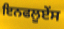
ਇਨਫਲੂਏਂਸ